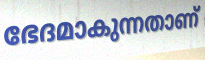
ഭേദമാകുന്നതാണ്